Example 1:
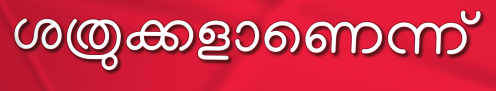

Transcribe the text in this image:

ശത്രുക്കളാണെന്ന്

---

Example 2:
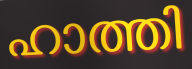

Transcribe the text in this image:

ഹാത്തി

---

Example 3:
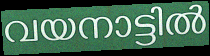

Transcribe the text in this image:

വയനാട്ടിൽ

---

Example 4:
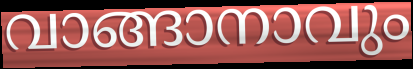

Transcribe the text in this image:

വാങ്ങാനാവും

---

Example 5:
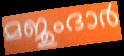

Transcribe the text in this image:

മജുംദാർ